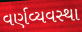
વર્ણવ્યવસ્થા